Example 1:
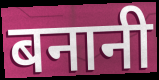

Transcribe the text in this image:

बनानी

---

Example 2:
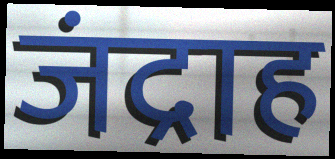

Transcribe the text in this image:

जंद्राह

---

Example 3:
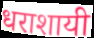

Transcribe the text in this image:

धराशायी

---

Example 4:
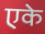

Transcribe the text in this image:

एके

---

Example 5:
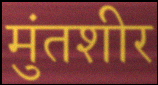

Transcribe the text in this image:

मुंतशीर